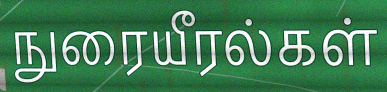
நுரையீரல்கள்